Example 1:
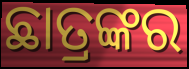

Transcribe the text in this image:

ଛାତ୍ରଙ୍କର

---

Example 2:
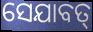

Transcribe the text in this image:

ସେଯାବତ୍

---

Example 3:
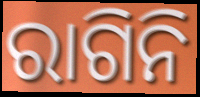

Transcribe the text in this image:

ରାଗିନି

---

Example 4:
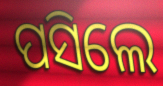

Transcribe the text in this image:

ପସିଲେ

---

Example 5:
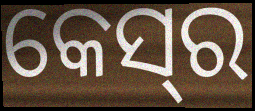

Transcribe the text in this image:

କେସ୍‌ର